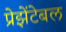
प्रेझेंटेबल